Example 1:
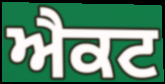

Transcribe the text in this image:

ਐਕਟ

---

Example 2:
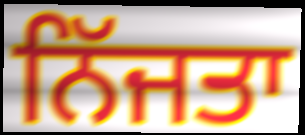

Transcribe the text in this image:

ਨਿੱਜਤਾ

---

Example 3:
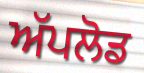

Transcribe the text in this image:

ਅੱਪਲੋਡ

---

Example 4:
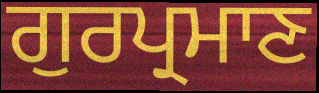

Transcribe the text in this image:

ਗੁਰਪ੍ਰਮਾਣ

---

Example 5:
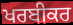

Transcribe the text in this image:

ਖਰਬੀਕਰ